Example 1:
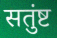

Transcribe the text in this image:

सतुंष्ट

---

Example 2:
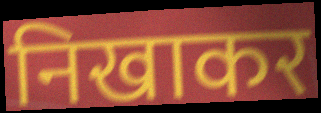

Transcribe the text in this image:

निखाकर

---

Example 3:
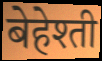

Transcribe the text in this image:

बेहेश्ती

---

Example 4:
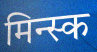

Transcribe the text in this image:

मिन्स्क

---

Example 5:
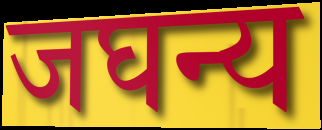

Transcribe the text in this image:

जघन्‍य